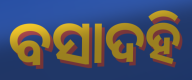
ବସାଦହି